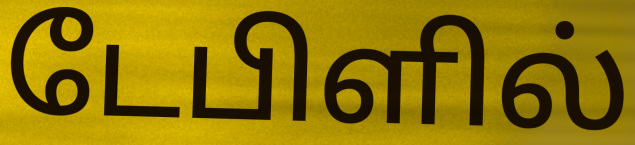
டேபிளில்